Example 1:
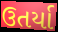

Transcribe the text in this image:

ઉતર્યા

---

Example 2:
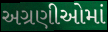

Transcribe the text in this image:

અગ્રણીઓમાં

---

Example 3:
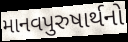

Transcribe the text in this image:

માનવપુરુષાર્થનો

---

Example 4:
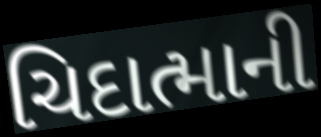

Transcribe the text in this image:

ચિદાત્માની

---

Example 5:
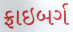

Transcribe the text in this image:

ફ્રાઇબર્ગ